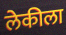
लेकीला